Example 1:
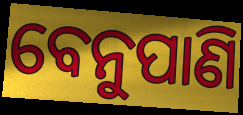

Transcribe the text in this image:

ବେନୁପାଣି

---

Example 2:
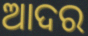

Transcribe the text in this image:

ଆଦର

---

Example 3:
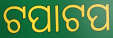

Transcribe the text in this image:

ଟପାଟପ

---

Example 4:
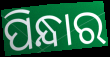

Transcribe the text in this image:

ପିନ୍ଧାର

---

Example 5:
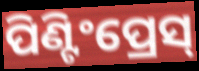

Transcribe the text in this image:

ପିଣ୍ଟିଂପ୍ରେସ୍